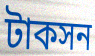
টাকসন